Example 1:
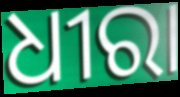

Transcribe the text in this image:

ଧୀରା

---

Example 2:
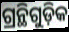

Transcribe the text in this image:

ଗ୍ରନ୍ଥିଗୁଡ଼ିକ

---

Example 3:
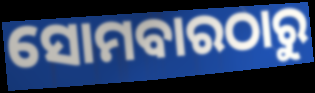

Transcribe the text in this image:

ସୋମବାରଠାରୁ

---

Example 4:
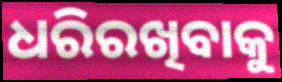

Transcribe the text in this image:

ଧରିରଖିବାକୁ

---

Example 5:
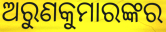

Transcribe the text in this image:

ଅରୁଣକୁମାରଙ୍କର